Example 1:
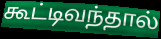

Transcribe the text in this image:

கூட்டிவந்தால்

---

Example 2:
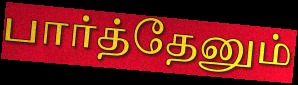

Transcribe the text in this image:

பார்த்தேனும்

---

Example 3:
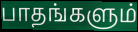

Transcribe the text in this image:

பாதங்களும்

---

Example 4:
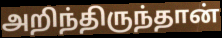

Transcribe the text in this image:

அறிந்திருந்தான்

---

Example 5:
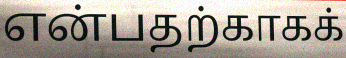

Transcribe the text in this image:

என்பதற்காகக்